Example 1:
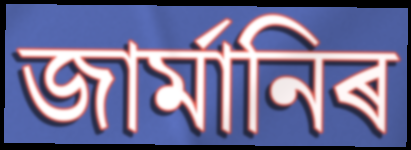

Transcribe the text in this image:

জাৰ্মানিৰ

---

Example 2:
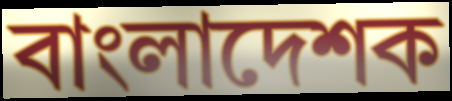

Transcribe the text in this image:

বাংলাদেশক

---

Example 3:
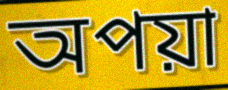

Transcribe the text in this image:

অপয়া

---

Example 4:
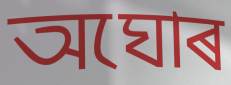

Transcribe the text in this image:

অঘোৰ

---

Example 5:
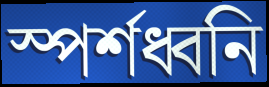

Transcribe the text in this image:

স্পৰ্শধ্বনি